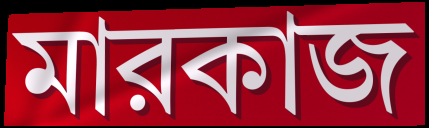
মারকাজ